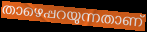
താഴെപ്പറയുന്നതാണ്